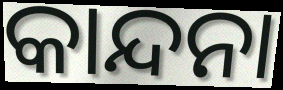
କାନ୍ଦନା